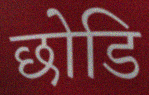
छोडि